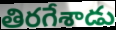
తిరగేశాడు